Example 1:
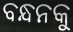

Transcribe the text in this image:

ବନ୍ଧନକୁ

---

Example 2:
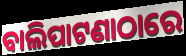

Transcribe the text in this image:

ବାଲିପାଟଣାଠାରେ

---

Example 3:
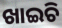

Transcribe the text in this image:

ଖାଇଚି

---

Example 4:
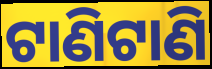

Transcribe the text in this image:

ଟାଣିଟାଣି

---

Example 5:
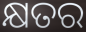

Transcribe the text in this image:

କ୍ଷତର